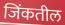
जिंकतील